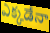
ఎక్కడేనా